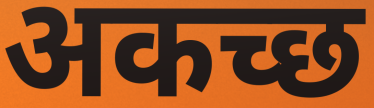
अकच्छ